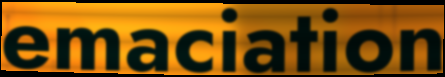
emaciation